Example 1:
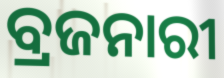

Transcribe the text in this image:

ବ୍ରଜନାରୀ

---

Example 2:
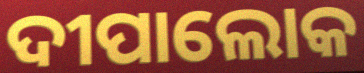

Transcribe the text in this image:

ଦୀପାଲୋକ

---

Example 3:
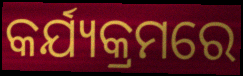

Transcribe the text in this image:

କର୍ଯ୍ୟକ୍ରମରେ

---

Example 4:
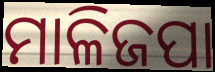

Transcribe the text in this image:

ମାଳିଜପା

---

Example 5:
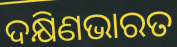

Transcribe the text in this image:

ଦକ୍ଷିଣଭାରତ